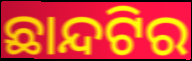
ଛାନ୍ଦଟିର